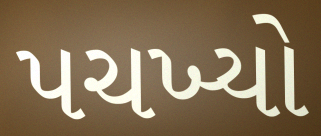
પચખ્યો